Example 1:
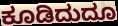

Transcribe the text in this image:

ಕೂಡಿದುದೂ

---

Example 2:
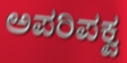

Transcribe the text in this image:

ಅಪರಿಪಕ್ವ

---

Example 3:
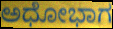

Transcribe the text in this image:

ಅಧೋಭಾಗ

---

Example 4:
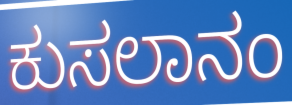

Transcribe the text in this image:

ಕುಸಲಾನಂ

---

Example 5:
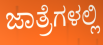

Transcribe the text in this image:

ಜಾತ್ರೆಗಳಲ್ಲಿ